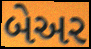
બેઅર